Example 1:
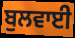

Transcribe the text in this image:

ਬੁਲਵਾਈ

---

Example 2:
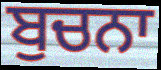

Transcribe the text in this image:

ਬੁਚਨਾ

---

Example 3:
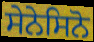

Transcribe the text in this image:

ਸੇਨੇਸਿਨੋ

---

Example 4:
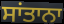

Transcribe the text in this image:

ਸਾਂਤਾਨਾ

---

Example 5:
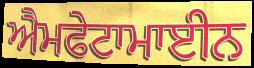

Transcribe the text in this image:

ਐਮਫੇਟਾਮਾਈਨ